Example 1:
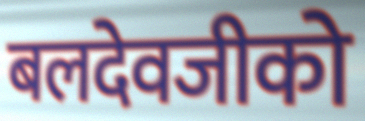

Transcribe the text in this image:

बलदेवजीको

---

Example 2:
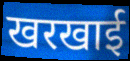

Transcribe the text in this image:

खरखाई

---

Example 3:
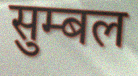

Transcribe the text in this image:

सुम्बल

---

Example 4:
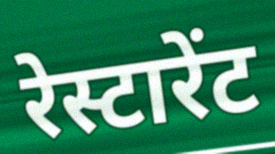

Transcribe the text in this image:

रेस्टारेंट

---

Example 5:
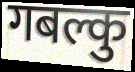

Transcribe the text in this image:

गबल्कु